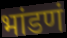
भांडणं